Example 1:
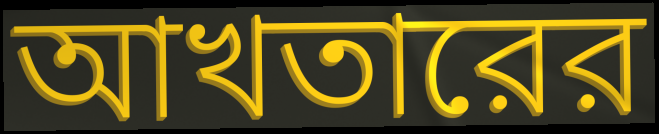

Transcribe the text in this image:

আখতারের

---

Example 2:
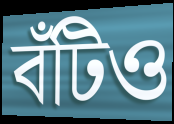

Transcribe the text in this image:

বঁটিও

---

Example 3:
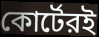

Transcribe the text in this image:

কোর্টেরই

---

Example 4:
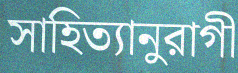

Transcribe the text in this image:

সাহিত্যানুরাগী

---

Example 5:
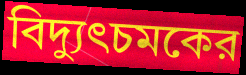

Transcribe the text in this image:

বিদ্যুৎচমকের